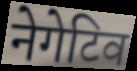
नेगेटिव